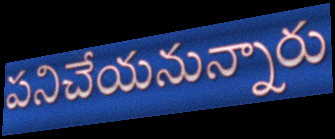
పనిచేయనున్నారు